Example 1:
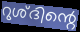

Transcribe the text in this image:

റുശ്ദിന്റെ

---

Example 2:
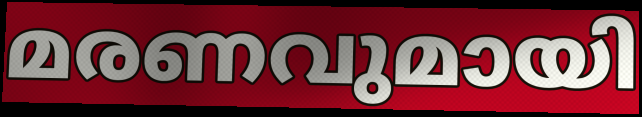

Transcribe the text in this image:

മരണവുമായി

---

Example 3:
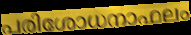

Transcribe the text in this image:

പരിശോധനാഫലം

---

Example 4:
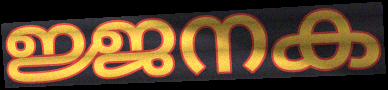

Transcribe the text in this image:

ജ്ജനക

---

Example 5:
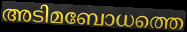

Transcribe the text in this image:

അടിമബോധത്തെ